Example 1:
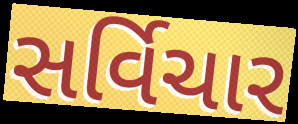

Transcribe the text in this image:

સર્વિચાર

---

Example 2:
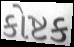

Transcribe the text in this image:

કોષ્ટક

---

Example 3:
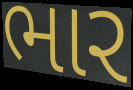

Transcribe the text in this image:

ભાર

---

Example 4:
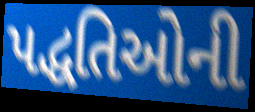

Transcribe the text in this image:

પદ્ધતિઓની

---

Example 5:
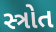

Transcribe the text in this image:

સ્ત્રોત